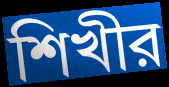
শিখীর